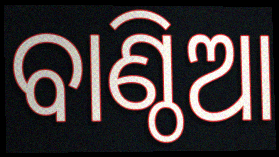
ବାଣ୍ଠିଆ